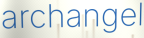
archangel